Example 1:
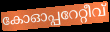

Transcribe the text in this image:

കോഓപ്പറേറ്റീവ്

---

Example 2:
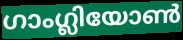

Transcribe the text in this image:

ഗാംഗ്ലിയോൺ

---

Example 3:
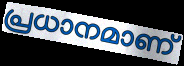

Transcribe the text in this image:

പ്രധാനമാണ്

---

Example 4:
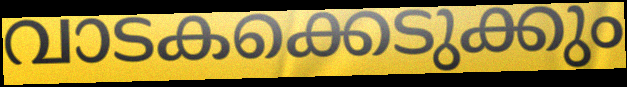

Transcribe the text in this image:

വാടകക്കെടുക്കും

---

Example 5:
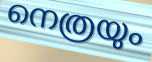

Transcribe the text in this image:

നെത്രയും